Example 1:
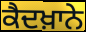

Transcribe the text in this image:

ਕੈਦਖ਼ਾਨੇ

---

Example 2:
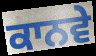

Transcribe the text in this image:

ਕਾਨਵੇ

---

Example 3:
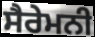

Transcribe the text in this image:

ਸੈਰੇਮਨੀ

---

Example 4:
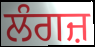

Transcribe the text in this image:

ਲੰਗਜ਼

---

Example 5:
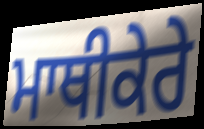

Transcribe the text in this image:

ਮਾਥੀਕੇਰੇ